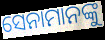
ସେନାମାନଙ୍କୁ